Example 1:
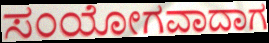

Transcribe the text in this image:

ಸಂಯೋಗವಾದಾಗ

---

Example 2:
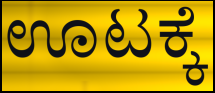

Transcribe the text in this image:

ಊಟಕ್ಕೆ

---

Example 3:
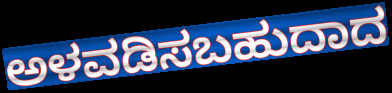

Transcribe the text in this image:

ಅಳವಡಿಸಬಹುದಾದ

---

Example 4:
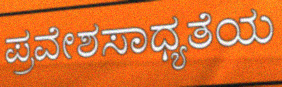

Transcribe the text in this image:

ಪ್ರವೇಶಸಾಧ್ಯತೆಯ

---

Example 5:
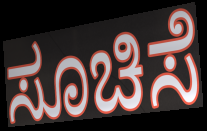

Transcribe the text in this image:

ಸೂಚಿಸೆ